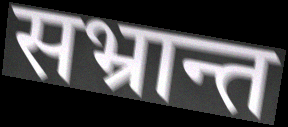
सभ्रान्त